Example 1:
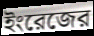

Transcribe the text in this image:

ইংরেজের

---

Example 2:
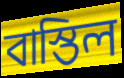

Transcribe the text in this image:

বাস্তিল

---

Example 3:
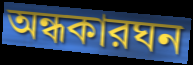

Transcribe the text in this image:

অন্ধকারঘন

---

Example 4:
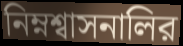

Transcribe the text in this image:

নিম্নশ্বাসনালির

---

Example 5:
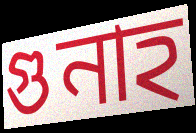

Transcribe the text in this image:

গুনাহ